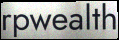
rpwealth